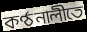
কণ্ঠনালীতে